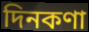
দিনকণা